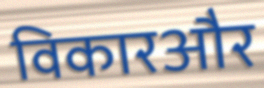
विकारऔर